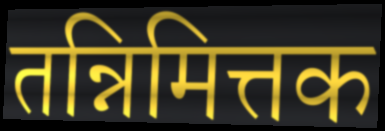
तन्निमित्तक